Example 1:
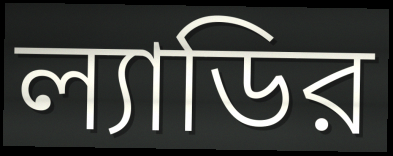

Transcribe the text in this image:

ল্যাডির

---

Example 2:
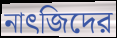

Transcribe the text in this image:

নাৎজিদের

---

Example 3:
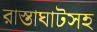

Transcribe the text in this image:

রাস্তাঘাটসহ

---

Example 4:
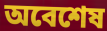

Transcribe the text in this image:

অবেশেষ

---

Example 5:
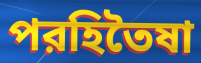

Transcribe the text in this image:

পরহিতৈষা